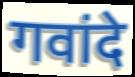
गवांदे